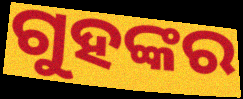
ଗୁହଙ୍କର